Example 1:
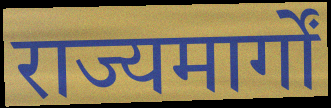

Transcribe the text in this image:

राज्यमार्गों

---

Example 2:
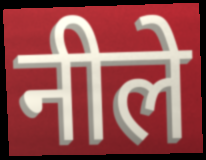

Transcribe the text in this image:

नीले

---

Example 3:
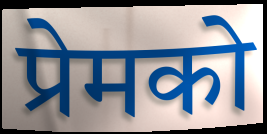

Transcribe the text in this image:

प्रेमको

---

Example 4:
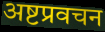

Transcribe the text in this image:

अष्टप्रवचन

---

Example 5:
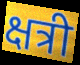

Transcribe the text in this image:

क्षत्री